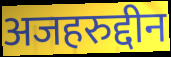
अजहरुद्दीन